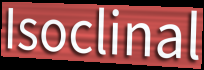
Isoclinal